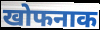
खोफनाक